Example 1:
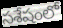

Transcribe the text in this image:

సశేషంలో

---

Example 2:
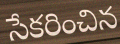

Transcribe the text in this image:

సేకరించిన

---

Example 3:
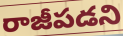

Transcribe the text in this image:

రాజీపడని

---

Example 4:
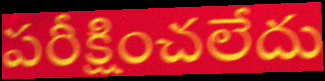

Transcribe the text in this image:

పరీక్షించలేదు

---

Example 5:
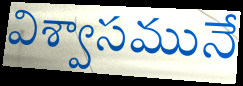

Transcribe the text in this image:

విశ్వాసమునే